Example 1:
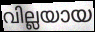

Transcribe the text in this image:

വില്ലയായ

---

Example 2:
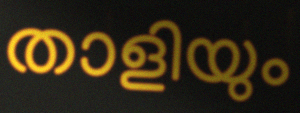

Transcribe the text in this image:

താളിയും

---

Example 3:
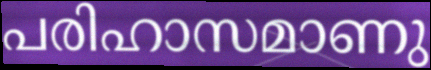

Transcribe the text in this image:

പരിഹാസമാണു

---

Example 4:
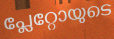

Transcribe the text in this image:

പ്ലേറ്റോയുടെ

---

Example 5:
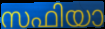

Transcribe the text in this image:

സഫിയാ